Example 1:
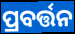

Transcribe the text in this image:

ପ୍ରବର୍ତ୍ତନ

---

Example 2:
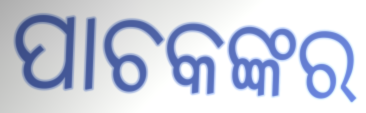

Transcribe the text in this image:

ପାଚକଙ୍କର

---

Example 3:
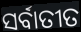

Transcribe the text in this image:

ସର୍ବାତୀତ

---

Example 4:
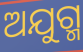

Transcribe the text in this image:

ଅଯୁଗ୍ମ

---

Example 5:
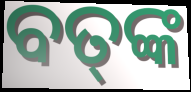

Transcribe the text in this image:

ବତ୍‍ଙ୍କ